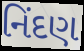
નિંદણ